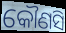
କୌଣସି